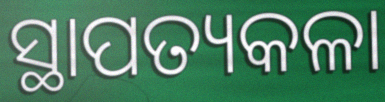
ସ୍ଥାପତ୍ୟକଳା